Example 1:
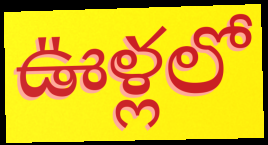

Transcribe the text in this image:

ఊళ్లలో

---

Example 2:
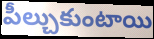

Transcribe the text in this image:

పీల్చుకుంటాయి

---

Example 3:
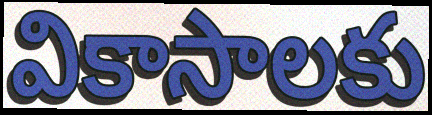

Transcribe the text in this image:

వికాసాలకు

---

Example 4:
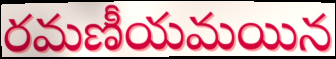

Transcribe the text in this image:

రమణీయమయిన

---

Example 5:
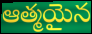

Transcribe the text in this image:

ఆత్మయైన